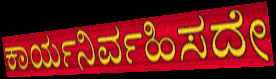
ಕಾರ್ಯನಿರ್ವಹಿಸದೇ